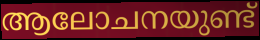
ആലോചനയുണ്ട്